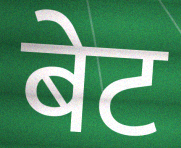
बेट